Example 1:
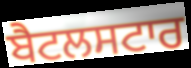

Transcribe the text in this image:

ਬੈਟਲਸਟਾਰ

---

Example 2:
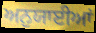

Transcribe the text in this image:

ਅਨੁਯਾਈਆਂ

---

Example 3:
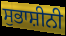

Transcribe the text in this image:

ਸੁਭਾਸ਼ੀਨੀ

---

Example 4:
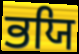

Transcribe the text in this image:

ਭਯਿ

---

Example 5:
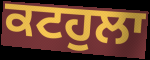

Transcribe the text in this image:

ਕਟਹੁਲਾ